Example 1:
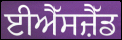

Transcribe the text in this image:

ਈਐੱਸਜ਼ੈੱਡ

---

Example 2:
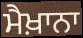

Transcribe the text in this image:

ਮੈਖ਼ਾਨਾ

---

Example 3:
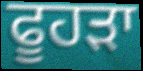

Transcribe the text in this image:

ਫੂਹੜਾ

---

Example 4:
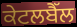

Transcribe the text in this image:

ਕੇਟਲਬੈੱਲ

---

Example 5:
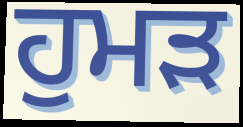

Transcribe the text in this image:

ਹੁਮੜ